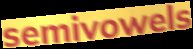
semivowels